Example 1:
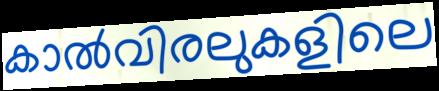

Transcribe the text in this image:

കാൽവിരലുകളിലെ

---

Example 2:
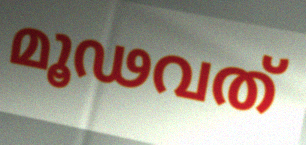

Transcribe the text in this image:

മൂഢവത്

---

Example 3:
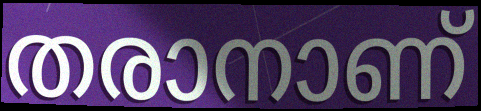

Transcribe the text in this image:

തരാനാണ്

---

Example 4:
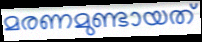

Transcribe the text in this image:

മരണമുണ്ടായത്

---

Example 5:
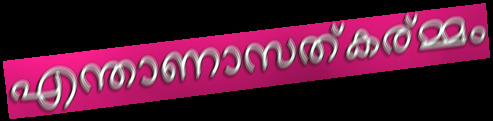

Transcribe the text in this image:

എന്താണാസത്കര്മ്മം